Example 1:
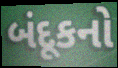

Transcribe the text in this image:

બંદૂકનો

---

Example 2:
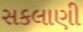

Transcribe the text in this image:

સકલાણી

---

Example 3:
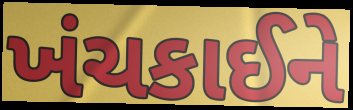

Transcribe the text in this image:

ખંચકાઈને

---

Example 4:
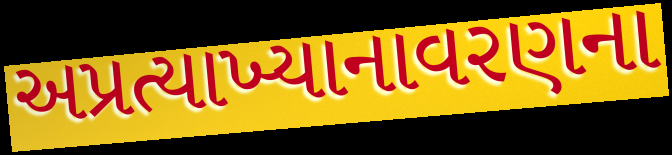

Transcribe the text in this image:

અપ્રત્યાખ્યાનાવરણના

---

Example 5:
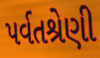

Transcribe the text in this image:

પર્વતશ્રેણી